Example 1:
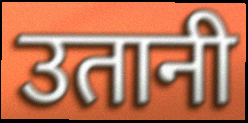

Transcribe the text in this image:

उतानी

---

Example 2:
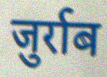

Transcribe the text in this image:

जुर्राब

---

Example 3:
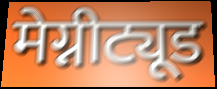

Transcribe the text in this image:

मेग्नीट्यूड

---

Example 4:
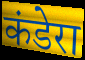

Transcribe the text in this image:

कंडेरा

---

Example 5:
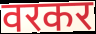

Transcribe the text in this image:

वरकर